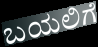
ಬಯಲಿಗೆ